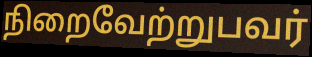
நிறைவேற்றுபவர்